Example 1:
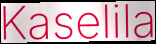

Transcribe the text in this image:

Kaselila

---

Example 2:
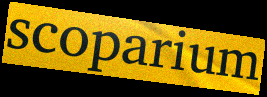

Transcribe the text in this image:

scoparium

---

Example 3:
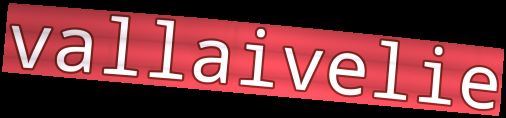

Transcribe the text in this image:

vallaivelie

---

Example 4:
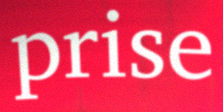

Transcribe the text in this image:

prise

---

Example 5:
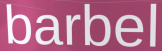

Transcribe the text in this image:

barbel